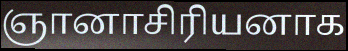
ஞானாசிரியனாக